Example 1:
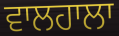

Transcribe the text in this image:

ਵਾਲਹਾਲਾ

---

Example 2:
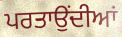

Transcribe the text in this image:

ਪਰਤਾਉਂਦੀਆਂ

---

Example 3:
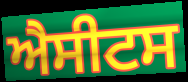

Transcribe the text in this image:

ਐਸੀਟਸ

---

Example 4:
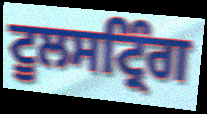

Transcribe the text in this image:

ਟੂਲਸਟ੍ਰਿੰਗ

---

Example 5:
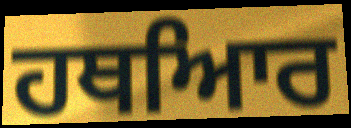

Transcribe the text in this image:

ਹਥਆਿਰ